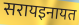
सरायइनायत